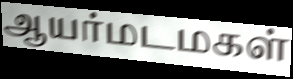
ஆயர்மடமகள்